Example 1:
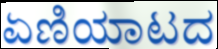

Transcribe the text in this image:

ಏಣಿಯಾಟದ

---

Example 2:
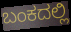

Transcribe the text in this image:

ಬಂಕದಲ್ಲಿ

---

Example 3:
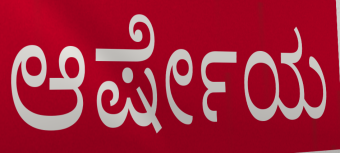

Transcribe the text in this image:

ಆರ್ಷೇಯ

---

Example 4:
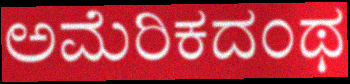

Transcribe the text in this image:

ಅಮೆರಿಕದಂಥ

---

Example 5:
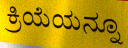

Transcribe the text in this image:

ಕ್ರಿಯೆಯನ್ನೂ